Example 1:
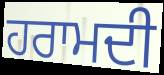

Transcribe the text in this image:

ਹਰਾਮਦੀ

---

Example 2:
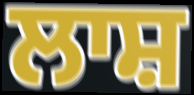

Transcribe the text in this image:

ਲਾਸ਼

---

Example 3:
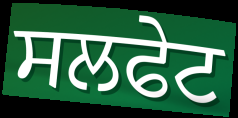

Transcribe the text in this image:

ਸਲਫੇਟ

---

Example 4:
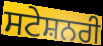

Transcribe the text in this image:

ਸਟੇਸ਼ਨਰੀ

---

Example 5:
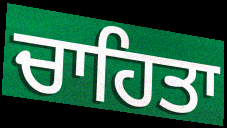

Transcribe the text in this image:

ਚਾਹਿਤਾ